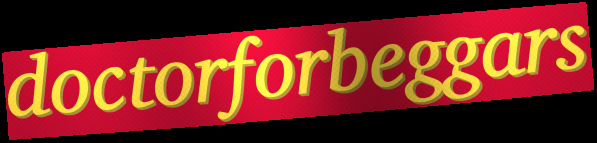
doctorforbeggars